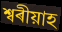
শ্বৰীয়াহ